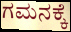
ಗಮನಕ್ಕೆ